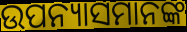
ଉପନ୍ୟାସମାନଙ୍କ